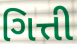
ગિત્તી